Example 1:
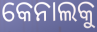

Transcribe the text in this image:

କେନାଲକୁ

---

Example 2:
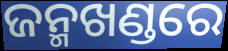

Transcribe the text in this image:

ଜନ୍ମଖଣ୍ଡରେ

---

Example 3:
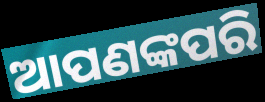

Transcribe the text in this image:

ଆପଣଙ୍କପରି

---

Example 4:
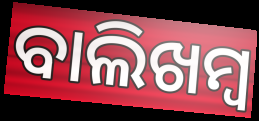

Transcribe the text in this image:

ବାଲିଖମ୍ବ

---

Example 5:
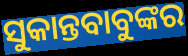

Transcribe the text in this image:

ସୁକାନ୍ତବାବୁଙ୍କର